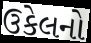
ઉકેલનો